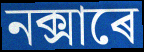
নক্সাৰে